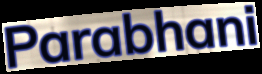
Parabhani